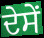
ਦੇਸੇਂ